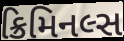
ક્રિમિનલ્સ